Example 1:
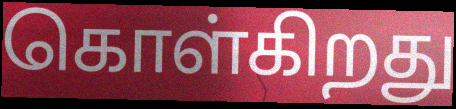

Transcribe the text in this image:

கொள்கிறது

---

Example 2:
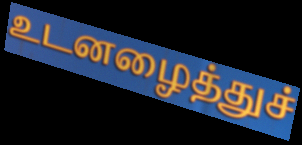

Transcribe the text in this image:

உடனழைத்துச்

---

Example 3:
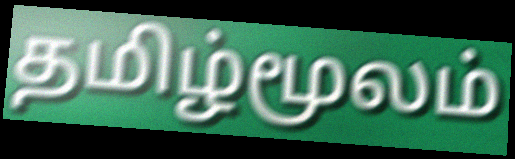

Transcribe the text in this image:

தமிழ்மூலம்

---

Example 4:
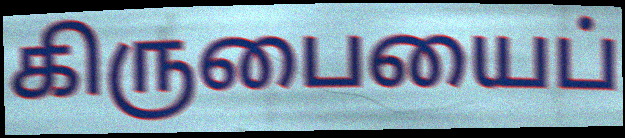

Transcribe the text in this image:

கிருபையைப்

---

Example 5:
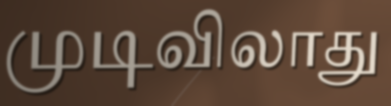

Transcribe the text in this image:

முடிவிலாது